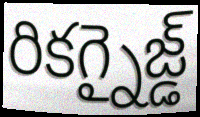
రికగ్నైజ్డ్